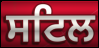
ਸਟਿਲ